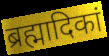
ब्रह्मादिकां